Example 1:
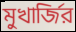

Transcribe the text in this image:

মুখার্জির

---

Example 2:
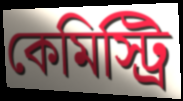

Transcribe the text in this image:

কেমিস্ট্রি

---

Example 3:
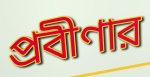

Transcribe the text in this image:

প্রবীণার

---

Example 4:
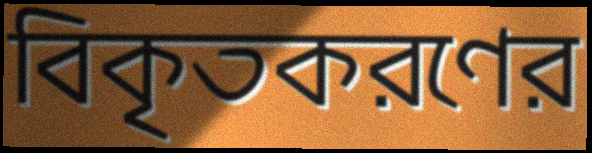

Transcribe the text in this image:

বিকৃতকরণের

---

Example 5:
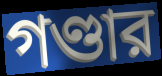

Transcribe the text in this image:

গণ্ডার